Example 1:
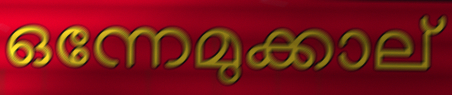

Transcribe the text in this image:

ഒന്നേമുക്കാല്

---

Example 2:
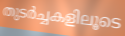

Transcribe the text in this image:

തുടർച്ചകളിലൂടെ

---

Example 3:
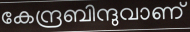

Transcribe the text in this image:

കേന്ദ്രബിന്ദുവാണ്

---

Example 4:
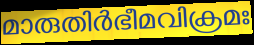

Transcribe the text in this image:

മാരുതിർഭീമവിക്രമഃ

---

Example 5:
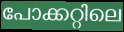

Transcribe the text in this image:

പോക്കറ്റിലെ